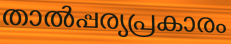
താൽപ്പര്യപ്രകാരം